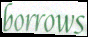
borrows